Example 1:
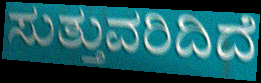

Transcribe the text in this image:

ಸುತ್ತುವರಿದಿದೆ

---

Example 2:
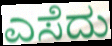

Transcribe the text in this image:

ಎಸೆದು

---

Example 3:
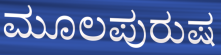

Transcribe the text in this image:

ಮೂಲಪುರುಷ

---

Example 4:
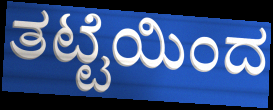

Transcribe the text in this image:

ತಟ್ಟೆಯಿಂದ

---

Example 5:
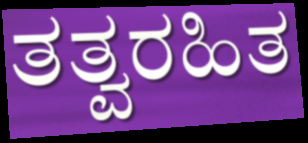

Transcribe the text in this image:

ತತ್ವರಹಿತ